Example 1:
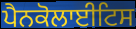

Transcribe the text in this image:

ਪੈਨਕੋਲਾਈਟਿਸ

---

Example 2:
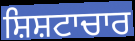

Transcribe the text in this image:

ਸ਼ਿਸ਼ਟਾਚਾਰ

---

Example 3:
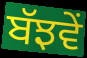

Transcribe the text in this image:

ਬੱਝਵੇਂ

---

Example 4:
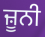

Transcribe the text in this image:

ਜ਼ੂਨੀ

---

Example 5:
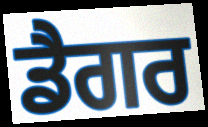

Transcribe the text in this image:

ਡੈਗਰ